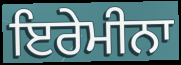
ਇਰੇਮੀਨਾ